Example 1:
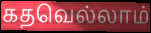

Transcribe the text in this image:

கதவெல்லாம்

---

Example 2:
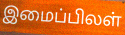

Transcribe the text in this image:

இமைப்பிலள்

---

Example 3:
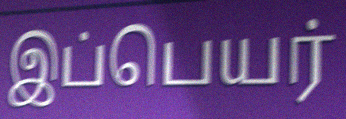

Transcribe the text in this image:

இப்பெயர்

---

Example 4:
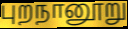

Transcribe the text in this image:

புறநானூறு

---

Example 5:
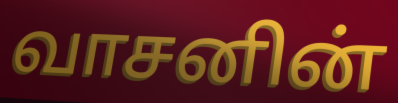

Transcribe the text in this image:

வாசனின்